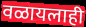
वळायलाही